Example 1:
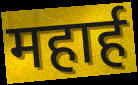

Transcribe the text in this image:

महार्ह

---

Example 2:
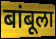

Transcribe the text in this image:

बांबूला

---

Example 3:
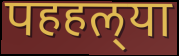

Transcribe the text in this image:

पहहल्या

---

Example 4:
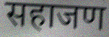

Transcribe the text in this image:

सहाजण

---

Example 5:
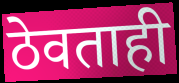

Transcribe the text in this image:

ठेवताही